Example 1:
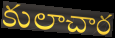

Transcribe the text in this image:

కులాచార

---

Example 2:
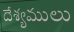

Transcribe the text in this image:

దేశ్యములు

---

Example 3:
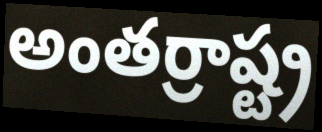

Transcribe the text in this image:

అంతర్రాష్ట్ర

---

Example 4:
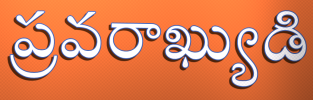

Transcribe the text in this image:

ప్రవరాఖ్యుడి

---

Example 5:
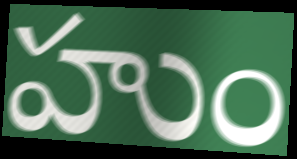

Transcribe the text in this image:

హుం